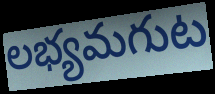
లభ్యమగుట